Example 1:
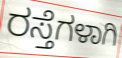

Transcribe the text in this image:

ರಸ್ತೆಗಳಾಗಿ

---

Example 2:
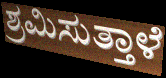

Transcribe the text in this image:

ಶ್ರಮಿಸುತ್ತಾಳೆ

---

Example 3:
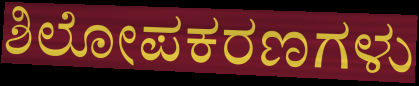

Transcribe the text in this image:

ಶಿಲೋಪಕರಣಗಳು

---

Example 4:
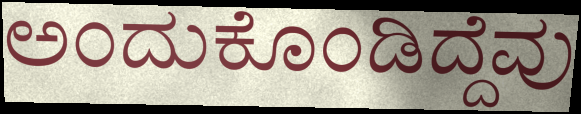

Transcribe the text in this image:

ಅಂದುಕೊಂಡಿದ್ದೆವು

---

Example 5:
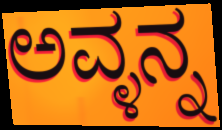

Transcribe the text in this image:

ಅವ್ಳನ್ನ